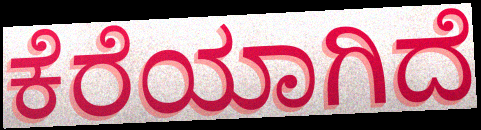
ಕೆರೆಯಾಗಿದೆ